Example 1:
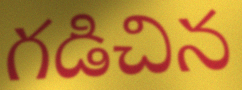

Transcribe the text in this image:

గడిచిన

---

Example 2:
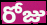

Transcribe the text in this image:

రోజు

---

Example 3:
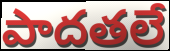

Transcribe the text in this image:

పాదతలే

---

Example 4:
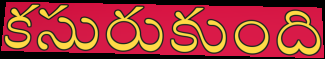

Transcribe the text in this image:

కసురుకుంది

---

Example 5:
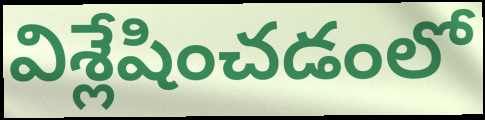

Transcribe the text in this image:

విశ్లేషించడంలో